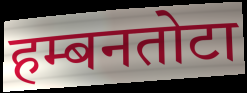
हम्बनतोटा